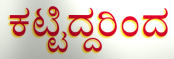
ಕಟ್ಟಿದ್ದರಿಂದ